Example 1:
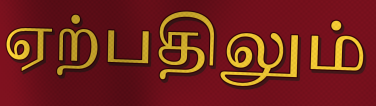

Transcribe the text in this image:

ஏற்பதிலும்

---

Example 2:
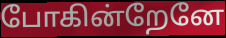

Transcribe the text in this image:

போகின்றேனே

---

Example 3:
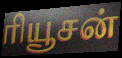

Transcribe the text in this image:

ரியூசன்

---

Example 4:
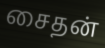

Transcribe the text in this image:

சைதன்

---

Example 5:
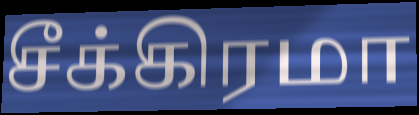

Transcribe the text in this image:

சீக்கிரமா